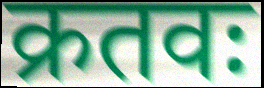
क्रतवः